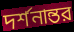
দর্শনান্তর